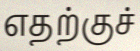
எதற்குச்